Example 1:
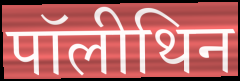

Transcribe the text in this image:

पॉलीथिन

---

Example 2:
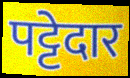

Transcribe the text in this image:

पट्टेदार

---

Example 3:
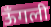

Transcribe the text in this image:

ऊँगली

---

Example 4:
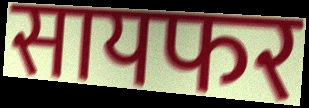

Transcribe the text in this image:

सायफर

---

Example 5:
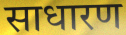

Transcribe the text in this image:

साधारण